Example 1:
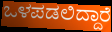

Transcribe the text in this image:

ಒಳಪಡಲಿದ್ದಾರೆ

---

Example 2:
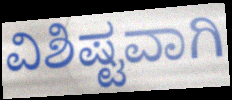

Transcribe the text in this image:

ವಿಶಿಷ್ಟವಾಗಿ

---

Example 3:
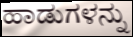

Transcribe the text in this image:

ಹಾಡುಗಳನ್ನು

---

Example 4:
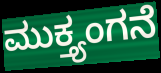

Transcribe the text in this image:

ಮುಕ್ತ್ಯಂಗನೆ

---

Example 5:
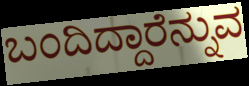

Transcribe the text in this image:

ಬಂದಿದ್ದಾರೆನ್ನುವ